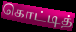
கொட்டித்